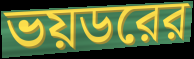
ভয়ডরের